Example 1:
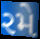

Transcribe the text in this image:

રમે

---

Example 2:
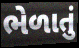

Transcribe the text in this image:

ભેળાતું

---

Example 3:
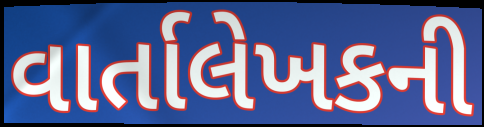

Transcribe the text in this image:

વાર્તાલેખકની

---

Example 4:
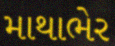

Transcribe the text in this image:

માથાભેર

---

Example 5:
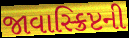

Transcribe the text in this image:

જાવાસ્ક્રિપ્ટની